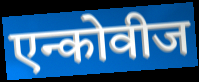
एन्कोवीज